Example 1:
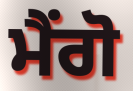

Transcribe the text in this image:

ਮੈਂਗੋ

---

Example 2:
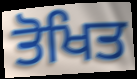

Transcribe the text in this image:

ਤੋਖਿਤ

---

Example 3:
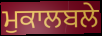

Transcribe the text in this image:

ਮੁਕਾਲਬਲੇ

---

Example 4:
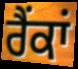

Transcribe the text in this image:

ਰੈਂਕਾਂ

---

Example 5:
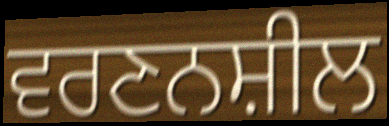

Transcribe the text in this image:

ਵਰਣਨਸ਼ੀਲ